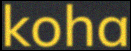
koha